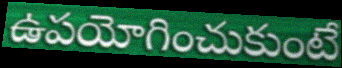
ఉపయోగించుకుంటే